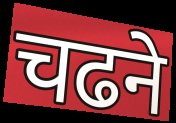
चढने